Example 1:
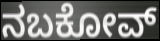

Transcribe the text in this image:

ನಬಕೋವ್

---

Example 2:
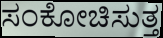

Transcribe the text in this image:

ಸಂಕೋಚಿಸುತ್ತ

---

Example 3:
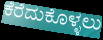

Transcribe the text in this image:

ಕೆರೆದುಕೊಳ್ಳಲು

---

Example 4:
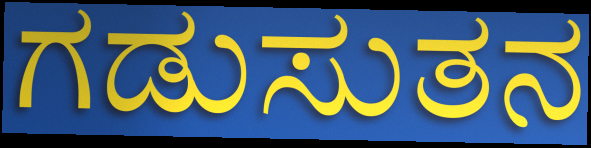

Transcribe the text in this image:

ಗಡುಸುತನ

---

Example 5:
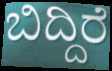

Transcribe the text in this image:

ಬಿದ್ದಿರೆ